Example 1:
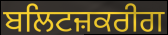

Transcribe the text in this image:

ਬਲਿਟਜ਼ਕਰੀਗ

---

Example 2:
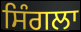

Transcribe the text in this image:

ਸਿੰਗਲਾ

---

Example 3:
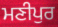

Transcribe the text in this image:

ਮਣੀਪੁਰ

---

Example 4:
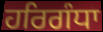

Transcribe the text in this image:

ਹਰਿਗੰਧਾ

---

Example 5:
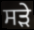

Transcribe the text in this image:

ਸੜੇ